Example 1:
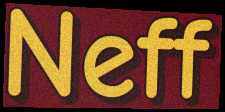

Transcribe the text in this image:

Neff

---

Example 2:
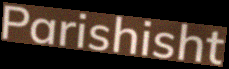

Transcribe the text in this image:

Parishisht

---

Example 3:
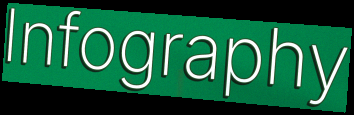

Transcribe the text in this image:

Infography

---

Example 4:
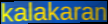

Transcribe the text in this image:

kalakaran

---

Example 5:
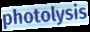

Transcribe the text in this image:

photolysis